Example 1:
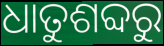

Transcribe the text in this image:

ଧାତୁଶବ୍ଦରୁ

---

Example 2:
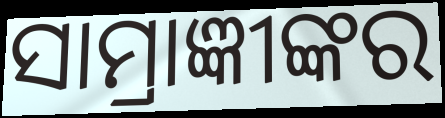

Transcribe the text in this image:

ସାମ୍ରାଜ୍ଞୀଙ୍କର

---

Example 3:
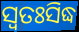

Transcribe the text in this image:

ସ୍ବତଃସିଦ୍ଧ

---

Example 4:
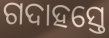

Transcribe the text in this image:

ଗଦାହସ୍ତେ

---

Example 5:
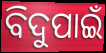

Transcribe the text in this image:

ବିଦୁପାଇଁ